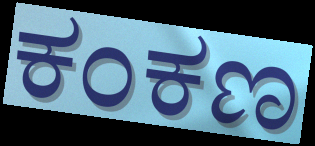
ಕಂಕಣ